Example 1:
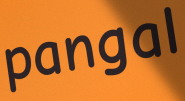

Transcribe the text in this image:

pangal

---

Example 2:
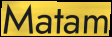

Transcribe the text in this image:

Matam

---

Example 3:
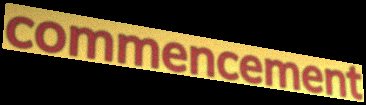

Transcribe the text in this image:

commencement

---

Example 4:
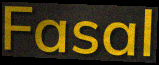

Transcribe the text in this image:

Fasal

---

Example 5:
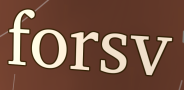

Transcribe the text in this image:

forsv